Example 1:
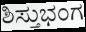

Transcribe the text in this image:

ಶಿಸ್ತುಭಂಗ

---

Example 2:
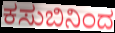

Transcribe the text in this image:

ಕಸುಬಿನಿಂದ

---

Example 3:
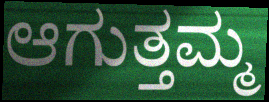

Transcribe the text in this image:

ಆಗುತ್ತಮ್ಮ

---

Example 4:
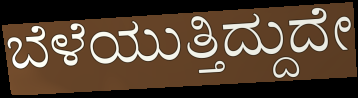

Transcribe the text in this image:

ಬೆಳೆಯುತ್ತಿದ್ದುದೇ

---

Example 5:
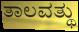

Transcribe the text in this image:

ತಾಲವತ್ಥು